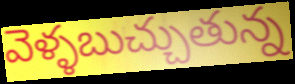
వెళ్ళబుచ్చుతున్న